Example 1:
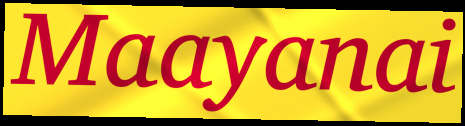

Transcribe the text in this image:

Maayanai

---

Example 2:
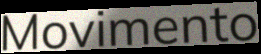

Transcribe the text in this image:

Movimento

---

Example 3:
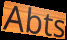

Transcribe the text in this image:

Abts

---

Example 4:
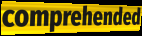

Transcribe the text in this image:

comprehended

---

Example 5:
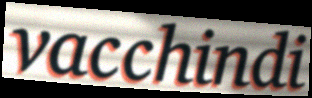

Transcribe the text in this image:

vacchindi